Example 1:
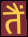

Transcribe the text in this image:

तैं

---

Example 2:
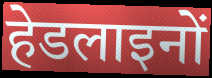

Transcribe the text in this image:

हेडलाइनों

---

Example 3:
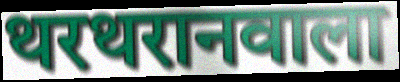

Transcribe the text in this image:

थरथरानवाला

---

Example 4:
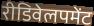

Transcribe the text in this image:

रीडिवेलपमेंट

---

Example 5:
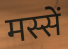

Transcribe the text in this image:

मस्सें